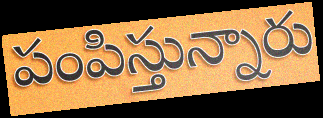
పంపిస్తున్నారు